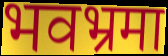
भवभ्रमा